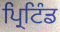
ਪ੍ਰਿਟਿੰਡ